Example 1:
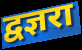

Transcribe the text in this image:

द्वज्ञरा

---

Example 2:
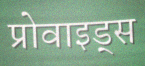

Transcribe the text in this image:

प्रोवाइड्स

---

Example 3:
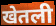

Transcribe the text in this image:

खेतली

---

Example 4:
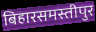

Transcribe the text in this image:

बिहारसमस्तीपुर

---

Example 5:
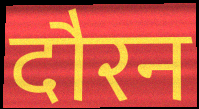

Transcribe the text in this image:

दौरन